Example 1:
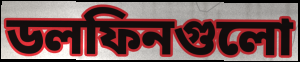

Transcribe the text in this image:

ডলফিনগুলো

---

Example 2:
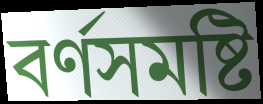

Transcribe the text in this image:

বর্ণসমষ্টি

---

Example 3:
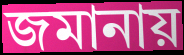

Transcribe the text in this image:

জমানায়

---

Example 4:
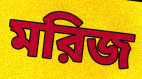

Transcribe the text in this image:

মরিজ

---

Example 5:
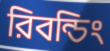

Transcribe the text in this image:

রিবন্ডিং